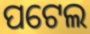
ପଟେଲ